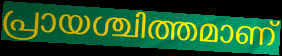
പ്രായശ്ചിത്തമാണ്